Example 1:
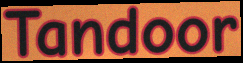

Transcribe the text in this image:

Tandoor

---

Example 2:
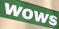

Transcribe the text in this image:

wows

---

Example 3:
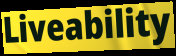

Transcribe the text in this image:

Liveability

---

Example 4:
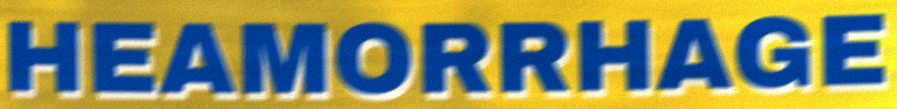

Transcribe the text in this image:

HEAMORRHAGE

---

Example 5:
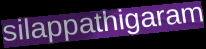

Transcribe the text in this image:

silappathigaram